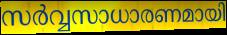
സർവ്വസാധാരണമായി